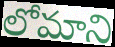
లోమాని